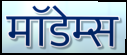
मॉडेम्स